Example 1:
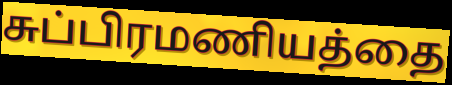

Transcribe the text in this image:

சுப்பிரமணியத்தை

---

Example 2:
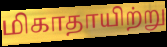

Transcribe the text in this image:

மிகாதாயிற்று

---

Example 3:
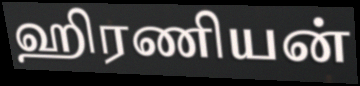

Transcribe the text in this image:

ஹிரணியன்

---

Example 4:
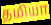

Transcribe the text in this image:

தமியா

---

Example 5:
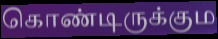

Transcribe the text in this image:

கொண்டிருக்கும